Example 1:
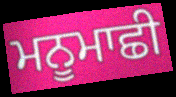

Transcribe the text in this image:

ਮਨੂਮਾਛੀ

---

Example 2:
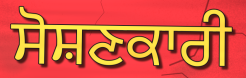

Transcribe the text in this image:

ਸੋਸ਼ਣਕਾਰੀ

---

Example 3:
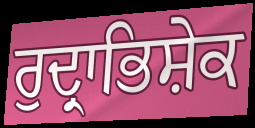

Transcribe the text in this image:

ਰੁਦ੍ਰਾਭਿਸ਼ੇਕ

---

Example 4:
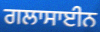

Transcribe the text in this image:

ਗਲਾਸਾਈਨ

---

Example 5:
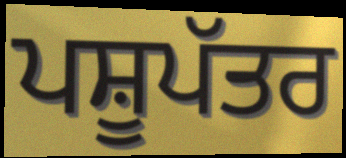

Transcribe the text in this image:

ਪਸ਼ੂਪੱਤਰ